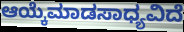
ಆಯ್ಕೆಮಾಡಸಾಧ್ಯವಿದೆ